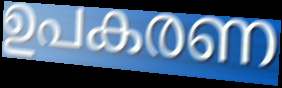
ഉപകരണ